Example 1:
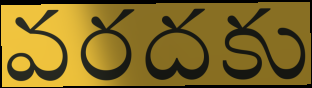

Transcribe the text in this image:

వరదకు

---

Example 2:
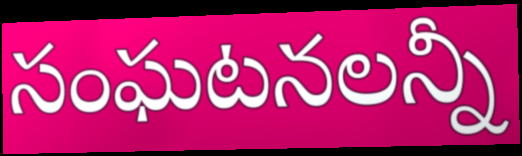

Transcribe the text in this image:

సంఘటనలన్నీ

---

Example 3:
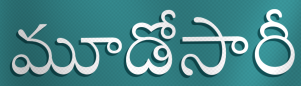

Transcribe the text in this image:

మూడోసారీ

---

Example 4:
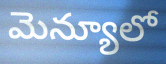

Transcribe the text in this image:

మెన్యూలో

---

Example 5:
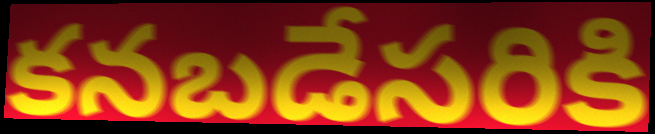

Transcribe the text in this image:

కనబడేసరికి